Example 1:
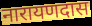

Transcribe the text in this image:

नारायणदास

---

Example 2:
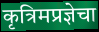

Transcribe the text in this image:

कृत्रिमप्रज्ञेचा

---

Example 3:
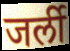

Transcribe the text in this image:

जर्ली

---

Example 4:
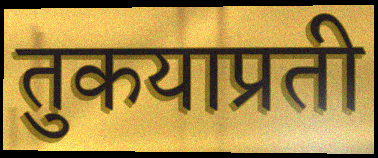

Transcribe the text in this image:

तुकयाप्रती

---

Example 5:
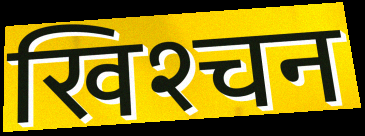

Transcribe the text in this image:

खिश्चन